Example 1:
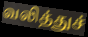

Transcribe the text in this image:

வலித்துச்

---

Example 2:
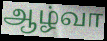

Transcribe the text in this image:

ஆழ்வா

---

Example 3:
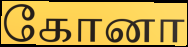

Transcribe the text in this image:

கோனா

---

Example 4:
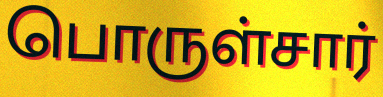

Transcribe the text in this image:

பொருள்சார்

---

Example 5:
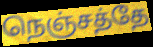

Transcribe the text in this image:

நெஞ்சத்தே